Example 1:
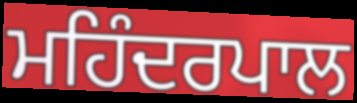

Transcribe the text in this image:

ਮਹਿੰਦਰਪਾਲ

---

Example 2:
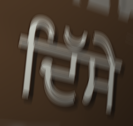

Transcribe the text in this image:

ਦਿੱਸੇ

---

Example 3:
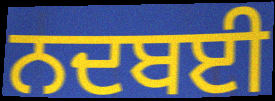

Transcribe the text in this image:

ਨਦਬਈ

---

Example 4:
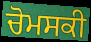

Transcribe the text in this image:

ਚੋਮਸਕੀ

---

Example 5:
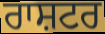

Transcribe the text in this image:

ਰਾਸ਼ਟਰ